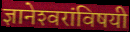
ज्ञानेश्वरांविषयी